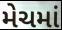
મેચમાં